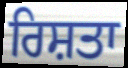
ਰਿਸ਼ਤਾ